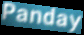
Panday